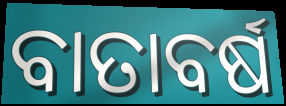
ବାତାବର୍ଷ